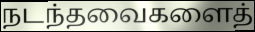
நடந்தவைகளைத்